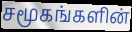
சமூகங்களின்